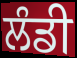
ਲੰਡੀ